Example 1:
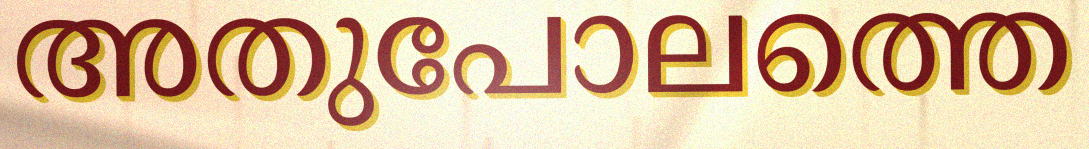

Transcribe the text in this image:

അതുപോലത്തെ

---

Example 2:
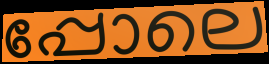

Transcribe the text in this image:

പ്പോലെ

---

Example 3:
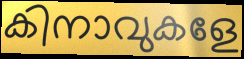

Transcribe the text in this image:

കിനാവുകളേ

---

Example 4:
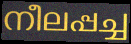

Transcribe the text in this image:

നീലപ്പച്ച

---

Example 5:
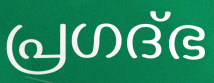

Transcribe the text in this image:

പ്രഗദ്ഭ